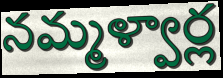
నమ్మళ్వార్ల